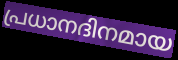
പ്രധാനദിനമായ